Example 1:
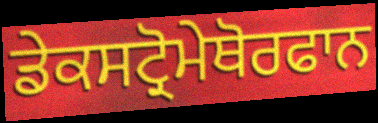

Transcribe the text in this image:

ਡੇਕਸਟ੍ਰੋਮੇਥੋਰਫਾਨ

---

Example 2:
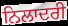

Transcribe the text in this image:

ਨਿਲਾਦਰੀ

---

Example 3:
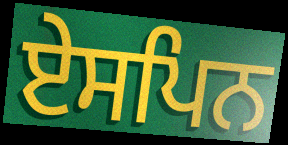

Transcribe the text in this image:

ਏਸਪਿਨ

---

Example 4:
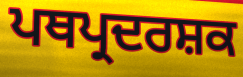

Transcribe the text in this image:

ਪਥਪ੍ਰਦਰਸ਼ਕ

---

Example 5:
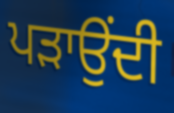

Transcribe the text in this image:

ਪੜਾਉਂਦੀ